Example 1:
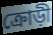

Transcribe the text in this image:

ক্রোড়ী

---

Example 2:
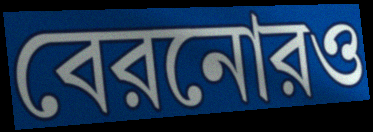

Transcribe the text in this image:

বেরনোরও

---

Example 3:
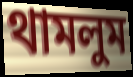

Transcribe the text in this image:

থামলুম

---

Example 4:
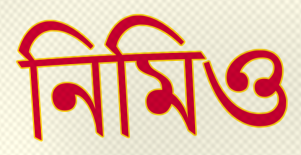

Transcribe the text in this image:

নিমিও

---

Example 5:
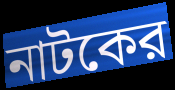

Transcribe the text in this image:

নাটকের